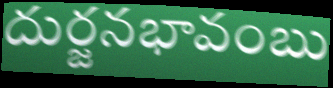
దుర్జనభావంబు